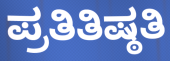
ಪ್ರತಿತಿಷ್ಠತಿ